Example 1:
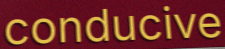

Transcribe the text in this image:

conducive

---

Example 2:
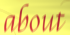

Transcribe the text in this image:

about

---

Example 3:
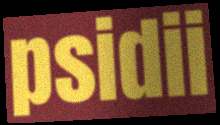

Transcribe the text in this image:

psidii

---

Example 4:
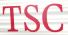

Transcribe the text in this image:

TSC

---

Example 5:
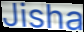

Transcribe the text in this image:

Jisha